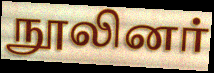
நூலினர்